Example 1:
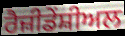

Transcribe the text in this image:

ਰੈਜ਼ੀਡੇਂਸ਼ੀਅਲ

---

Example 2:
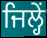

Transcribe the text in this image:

ਜਿਲ੍ਹੇਂ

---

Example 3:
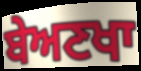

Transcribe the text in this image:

ਬੇਅਣਖਾ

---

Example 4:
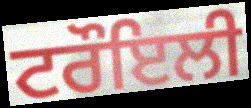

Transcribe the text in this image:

ਟਰੌਇਲੀ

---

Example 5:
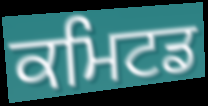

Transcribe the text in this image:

ਕਮਿਟਡ